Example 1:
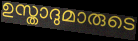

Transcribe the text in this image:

ഉസ്താദുമാരുടെ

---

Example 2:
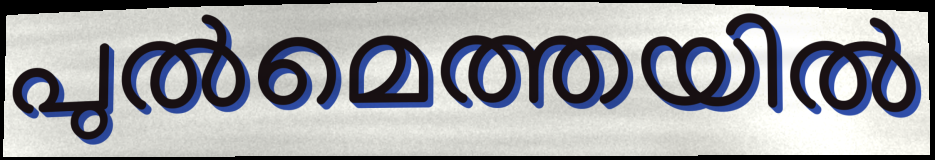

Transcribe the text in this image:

പുൽമെത്തയിൽ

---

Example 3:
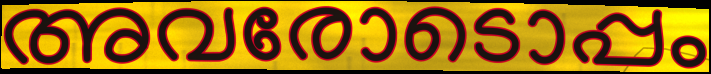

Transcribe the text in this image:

അവരോടൊപ്പം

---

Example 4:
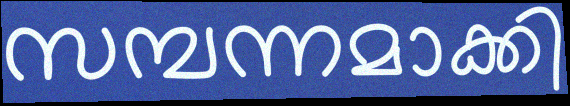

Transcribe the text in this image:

സമ്പന്നമാക്കി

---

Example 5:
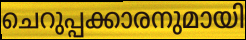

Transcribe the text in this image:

ചെറുപ്പക്കാരനുമായി